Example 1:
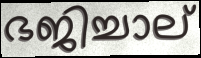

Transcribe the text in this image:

ഭജിച്ചാല്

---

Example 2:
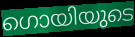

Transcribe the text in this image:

ഗൊയിയുടെ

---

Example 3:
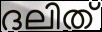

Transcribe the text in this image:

ദലിത്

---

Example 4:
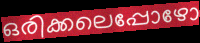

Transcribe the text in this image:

ഒരിക്കലെപ്പോഴോ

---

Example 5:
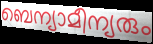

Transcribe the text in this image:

ബെന്യാമീന്യരും